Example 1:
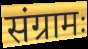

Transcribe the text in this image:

संग्रामः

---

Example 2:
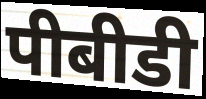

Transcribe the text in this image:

पीबीडी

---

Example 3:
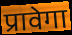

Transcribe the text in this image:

प्रावेगा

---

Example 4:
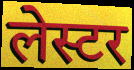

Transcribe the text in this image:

लेस्टर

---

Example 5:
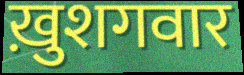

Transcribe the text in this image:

ख़ुशगवार